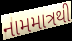
નામમાત્રથી